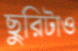
ছুরিটাও